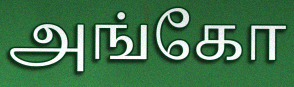
அங்கோ